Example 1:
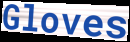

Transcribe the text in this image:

Gloves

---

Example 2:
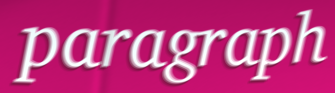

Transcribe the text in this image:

paragraph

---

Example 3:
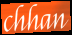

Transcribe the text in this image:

chhan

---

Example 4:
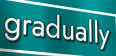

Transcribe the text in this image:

gradually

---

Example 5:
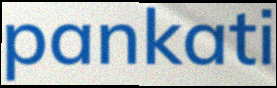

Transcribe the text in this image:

pankati